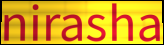
nirasha